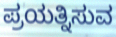
ಪ್ರಯತ್ನಿಸುವ